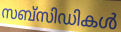
സബ്സിഡികൾ